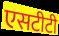
एसटीटी